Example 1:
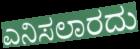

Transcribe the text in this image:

ಎನಿಸಲಾರದು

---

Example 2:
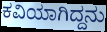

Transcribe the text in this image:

ಕವಿಯಾಗಿದ್ದನು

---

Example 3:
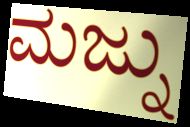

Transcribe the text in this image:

ಮಜ್ನು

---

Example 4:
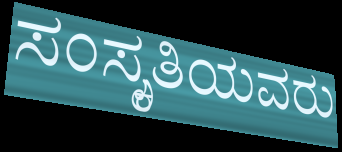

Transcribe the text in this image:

ಸಂಸ್ಕೃತಿಯವರು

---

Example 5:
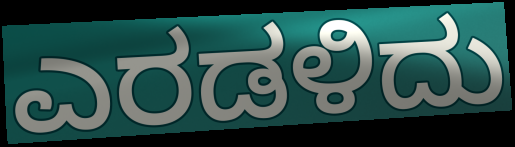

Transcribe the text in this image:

ಎರಡಳಿದು